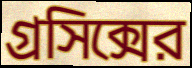
গ্রসিক্সের